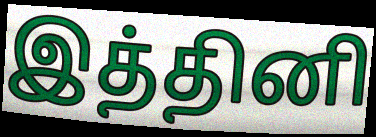
இத்தினி